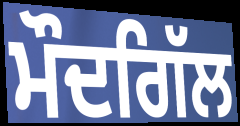
ਮੌਦਗਿੱਲ